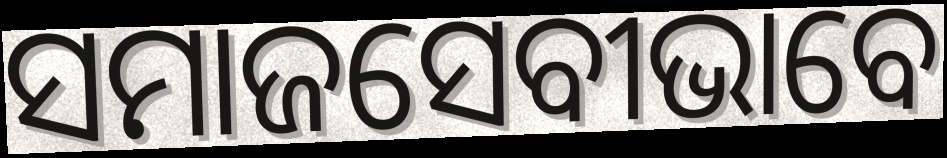
ସମାଜସେବୀଭାବେ